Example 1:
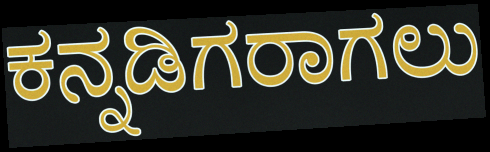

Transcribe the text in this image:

ಕನ್ನಡಿಗರಾಗಲು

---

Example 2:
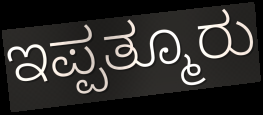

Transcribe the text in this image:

ಇಪ್ಪತ್ಮೂರು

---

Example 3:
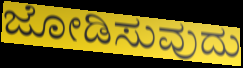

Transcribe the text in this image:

ಜೋಡಿಸುವುದು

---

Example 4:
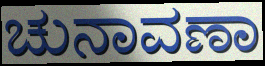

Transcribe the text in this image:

ಚುನಾವಣಾ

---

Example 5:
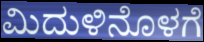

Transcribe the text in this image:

ಮಿದುಳಿನೊಳಗೆ